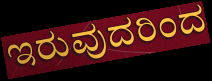
ಇರುವುದರಿಂದ